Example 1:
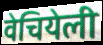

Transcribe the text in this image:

वेचियेली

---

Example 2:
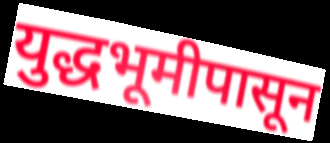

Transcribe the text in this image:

युद्धभूमीपासून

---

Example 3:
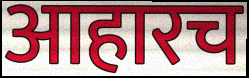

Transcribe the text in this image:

आहारच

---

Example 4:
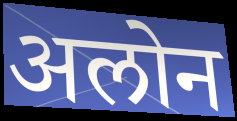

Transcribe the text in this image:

अलोन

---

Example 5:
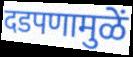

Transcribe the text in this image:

दडपणामुळें